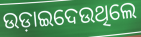
ଉଡ଼ାଇଦେଉଥିଲେ